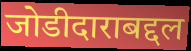
जोडीदाराबद्दल